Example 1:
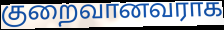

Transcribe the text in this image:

குறைவானவராக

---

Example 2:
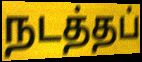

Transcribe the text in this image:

நடத்தப்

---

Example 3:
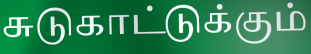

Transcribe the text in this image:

சுடுகாட்டுக்கும்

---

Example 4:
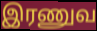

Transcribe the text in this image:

இரணுவ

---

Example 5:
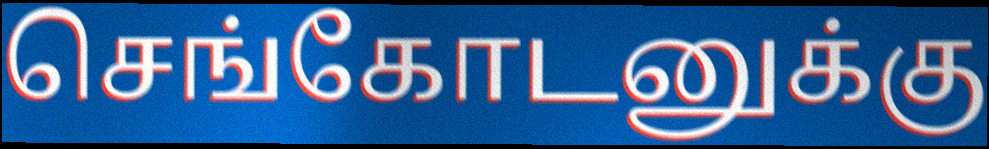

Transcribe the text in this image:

செங்கோடனுக்கு